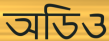
অডিও